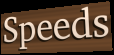
Speeds